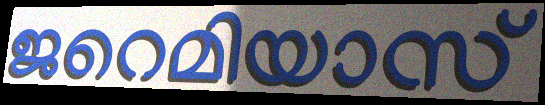
ജറെമിയാസ്